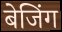
बेजिंग